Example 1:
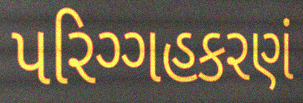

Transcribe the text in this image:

પરિગ્ગહકરણં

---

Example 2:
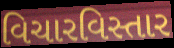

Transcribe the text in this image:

વિચારવિસ્તાર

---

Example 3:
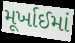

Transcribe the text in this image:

મૂર્ખાઈમાં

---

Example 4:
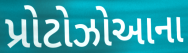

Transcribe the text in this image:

પ્રોટોઝોઆના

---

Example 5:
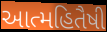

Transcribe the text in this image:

આત્મહિતૈષી